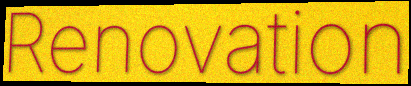
Renovation